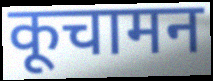
कूचामन